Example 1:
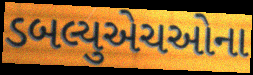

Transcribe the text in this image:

ડબલ્યુએચઓના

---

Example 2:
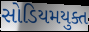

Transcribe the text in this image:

સોડિયમયુક્ત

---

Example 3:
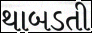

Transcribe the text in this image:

થાબડતી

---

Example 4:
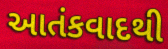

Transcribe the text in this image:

આતંકવાદથી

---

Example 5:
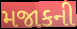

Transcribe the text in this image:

મજાકની